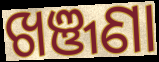
ଖଞ୍ଜଣା